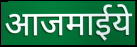
आजमाईये